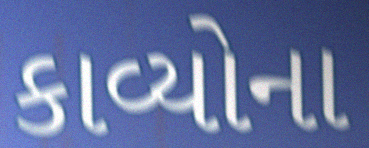
કાવ્યોના